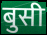
बुसी